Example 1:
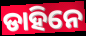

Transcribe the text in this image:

ଡାହିନେ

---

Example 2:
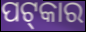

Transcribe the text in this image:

ପଟ୍‌କାର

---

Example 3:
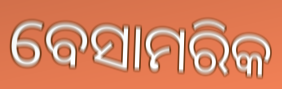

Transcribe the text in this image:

ବେସାମରିକ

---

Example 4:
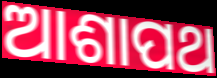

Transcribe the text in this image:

ଆଶାପଥ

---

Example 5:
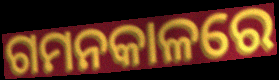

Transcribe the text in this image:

ଗମନକାଳରେ